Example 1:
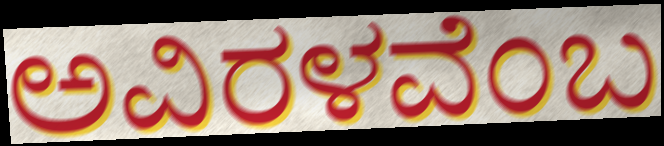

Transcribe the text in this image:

ಅವಿರಳವೆಂಬ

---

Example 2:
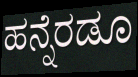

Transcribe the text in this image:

ಹನ್ನೆರಡೂ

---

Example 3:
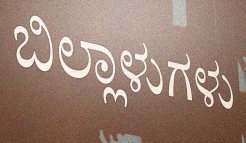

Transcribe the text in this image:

ಬಿಲ್ಲಾಳುಗಳು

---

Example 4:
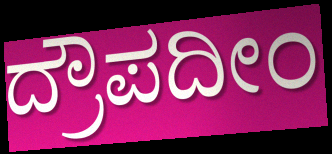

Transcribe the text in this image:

ದ್ರೌಪದೀಂ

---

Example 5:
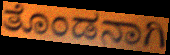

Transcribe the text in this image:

ತೊಂಡನಾಗಿ